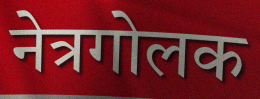
नेत्रगोलक